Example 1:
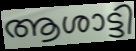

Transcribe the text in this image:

ആശാട്ടി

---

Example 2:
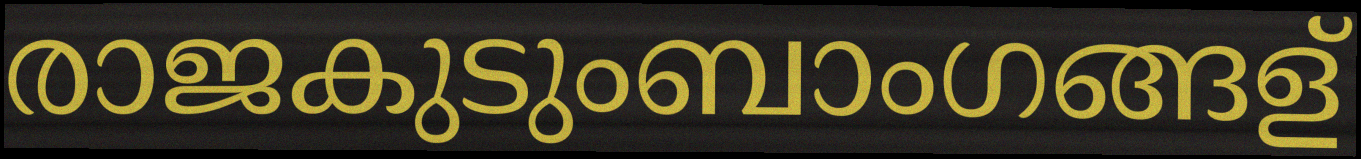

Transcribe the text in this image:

രാജകുടുംബാംഗങ്ങള്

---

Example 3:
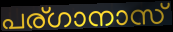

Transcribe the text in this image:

പര്ഗാനാസ്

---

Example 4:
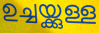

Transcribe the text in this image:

ഉച്ചയ്ക്കുള്ള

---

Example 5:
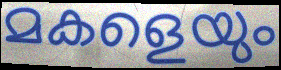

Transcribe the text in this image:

മകളെയും